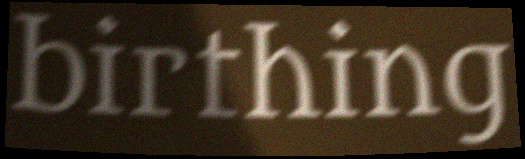
birthing